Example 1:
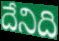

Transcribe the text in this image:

దేనిది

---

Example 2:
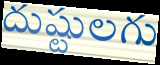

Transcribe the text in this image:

దుష్టులగు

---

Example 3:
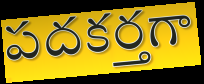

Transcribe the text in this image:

పదకర్తగా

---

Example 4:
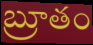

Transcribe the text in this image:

బ్రూతం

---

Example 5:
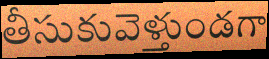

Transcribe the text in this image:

తీసుకువెళ్తుండగా